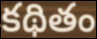
కథితం